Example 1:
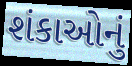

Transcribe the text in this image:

શંકાઓનું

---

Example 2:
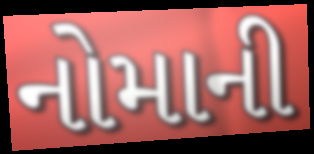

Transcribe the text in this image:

નોમાની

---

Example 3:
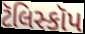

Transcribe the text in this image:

ટૅલિસ્કૉપ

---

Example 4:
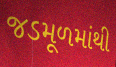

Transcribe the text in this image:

જડમૂળમાંથી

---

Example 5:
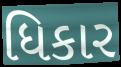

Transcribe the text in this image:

ધિકાર